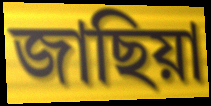
জাছিয়া